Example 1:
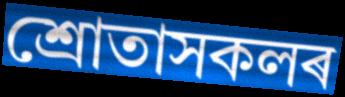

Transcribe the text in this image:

শ্ৰোতাসকলৰ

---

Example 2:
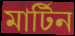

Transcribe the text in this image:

মাৰ্টিন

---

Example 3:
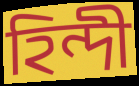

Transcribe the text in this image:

হিন্দী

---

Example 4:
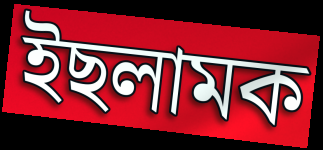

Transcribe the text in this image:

ইছলামক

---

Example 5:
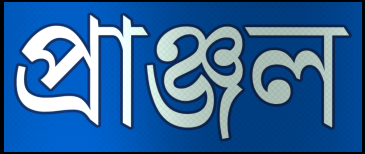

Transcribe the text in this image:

প্ৰাঞ্জল